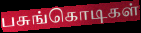
பசுங்கொடிகள்